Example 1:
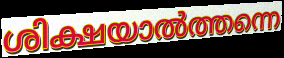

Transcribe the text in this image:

ശിക്ഷയാൽത്തന്നെ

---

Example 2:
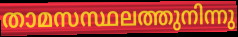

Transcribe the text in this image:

താമസസ്ഥലത്തുനിന്നു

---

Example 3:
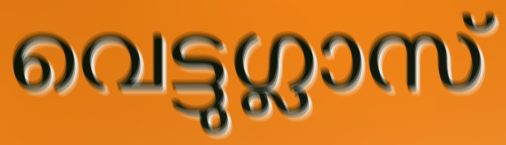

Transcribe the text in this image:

വെട്ടുഗ്ലാസ്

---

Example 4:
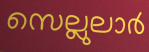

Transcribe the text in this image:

സെല്ലുലാർ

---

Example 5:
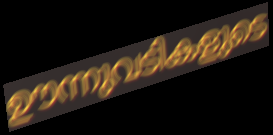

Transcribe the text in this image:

ഊന്നുവടികളുടെ